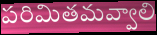
పరిమితమవ్వాలి